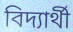
বিদ্যাৰ্থী